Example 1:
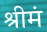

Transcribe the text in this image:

श्रीमं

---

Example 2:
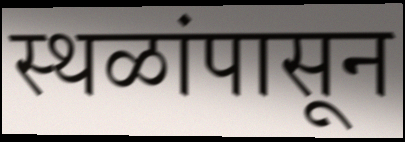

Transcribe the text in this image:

स्थळांपासून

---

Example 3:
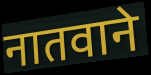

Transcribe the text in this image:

नातवाने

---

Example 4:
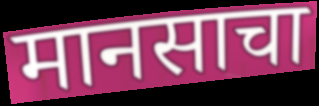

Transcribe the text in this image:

मानसाचा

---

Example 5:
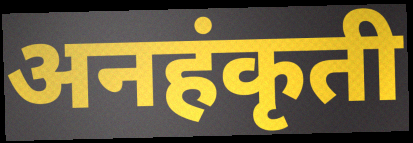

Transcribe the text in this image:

अनहंकृती